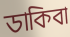
ডাকিবা